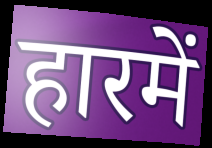
हारमें